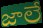
జాలే